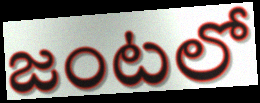
జంటలో